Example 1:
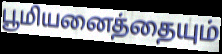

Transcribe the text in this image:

பூமியனைத்தையும்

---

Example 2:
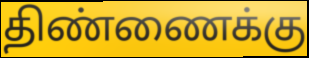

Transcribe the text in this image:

திண்ணைக்கு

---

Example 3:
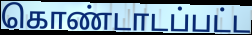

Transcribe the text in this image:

கொண்டாடப்பட்ட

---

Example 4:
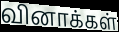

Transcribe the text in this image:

வினாக்கள்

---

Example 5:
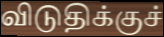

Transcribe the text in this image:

விடுதிக்குச்